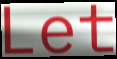
Let